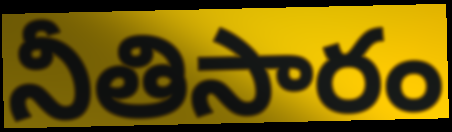
నీతిసారం